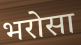
भरोसा